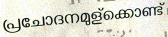
പ്രചോദനമുള്ക്കൊണ്ട്